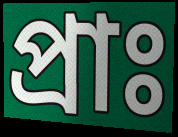
প্রাঃ